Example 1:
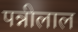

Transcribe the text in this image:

पन्नीलाल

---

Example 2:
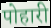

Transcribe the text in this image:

पोहारी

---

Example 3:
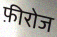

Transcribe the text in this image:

फ़ीरोज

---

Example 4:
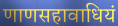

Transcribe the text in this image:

णाणसहावाधियं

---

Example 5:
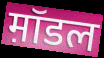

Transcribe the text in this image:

म़ॉडल